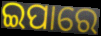
ଇପାରେ